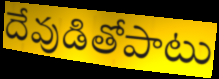
దేవుడితోపాటు